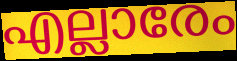
എല്ലാരേം